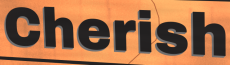
Cherish